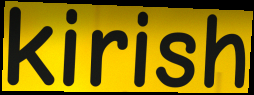
kirish